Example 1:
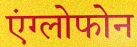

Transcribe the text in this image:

एंग्लोफोन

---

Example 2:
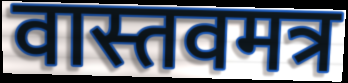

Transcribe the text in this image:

वास्तवमत्र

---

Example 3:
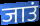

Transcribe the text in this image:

जाउं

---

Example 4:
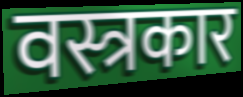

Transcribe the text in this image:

वस्त्रकार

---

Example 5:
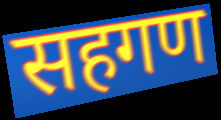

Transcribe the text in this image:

सहगण